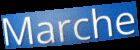
Marche